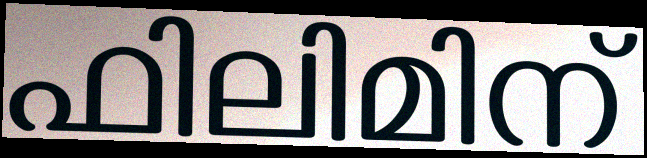
ഫിലിമിന്